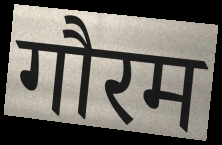
गौरम